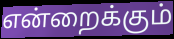
என்றைக்கும்